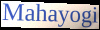
Mahayogi